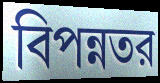
বিপন্নতর